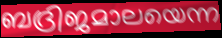
ബദ്രിജമാലയെന്ന